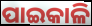
ପାଇକାଳି